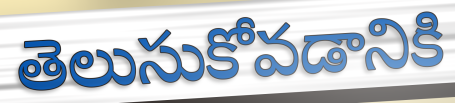
తెలుసుకోవడానికి